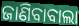
ଜାଣିବାବାଲା